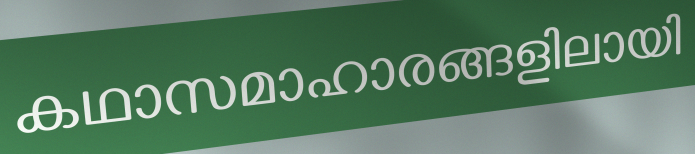
കഥാസമാഹാരങ്ങളിലായി